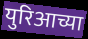
युरिआच्या